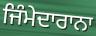
ਜਿੰਮੇਦਾਰਾਨਾ